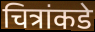
चित्रांकडे